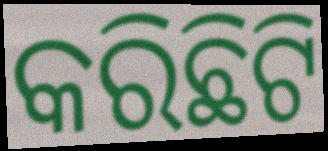
କରିଛିଟି